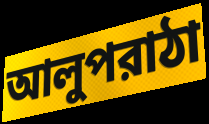
আলুপরাঠা